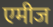
एमीज